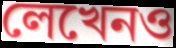
লেখেনও